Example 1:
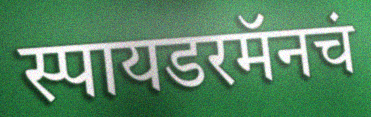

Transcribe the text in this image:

स्पायडरमॅनचं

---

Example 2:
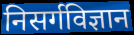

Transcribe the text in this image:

निसर्गविज्ञान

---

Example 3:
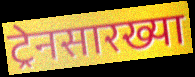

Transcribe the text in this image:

ट्रेनसारख्या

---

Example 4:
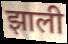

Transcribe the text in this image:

झाली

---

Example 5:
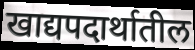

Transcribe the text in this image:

खाद्यपदार्थातील